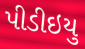
પીડીઇયુ